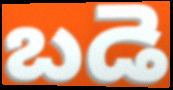
బడె